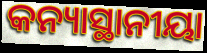
କନ୍ୟାସ୍ଥାନୀୟା